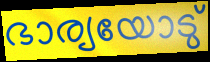
ഭാര്യയോടു്